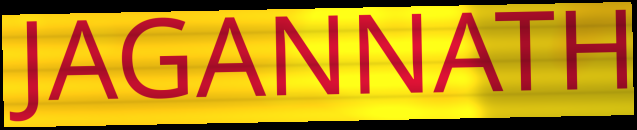
JAGANNATH